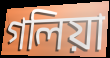
গলিয়া